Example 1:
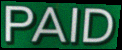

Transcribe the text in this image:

PAID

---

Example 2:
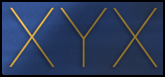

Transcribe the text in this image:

XYX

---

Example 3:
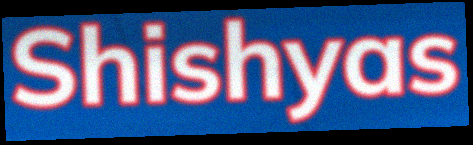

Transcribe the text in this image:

Shishyas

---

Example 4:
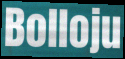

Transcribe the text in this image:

Bolloju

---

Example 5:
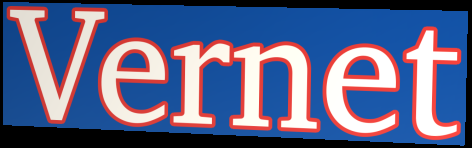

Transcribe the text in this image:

Vernet